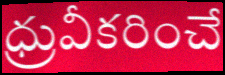
ధ్రువీకరించే